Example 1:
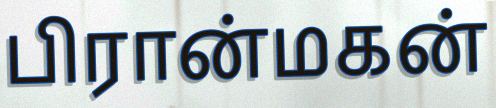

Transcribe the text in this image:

பிரான்மகன்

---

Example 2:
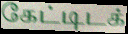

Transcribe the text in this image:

கேட்டிடக்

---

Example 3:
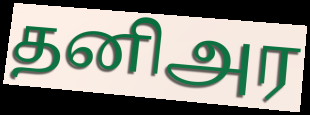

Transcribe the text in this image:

தனிஅர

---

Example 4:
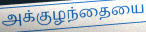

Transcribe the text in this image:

அக்குழந்தையை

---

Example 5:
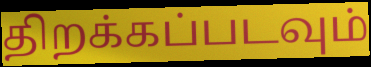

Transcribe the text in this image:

திறக்கப்படவும்